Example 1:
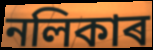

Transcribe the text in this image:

নলিকাৰ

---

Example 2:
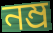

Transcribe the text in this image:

নম্ৰ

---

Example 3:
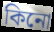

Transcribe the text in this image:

কিনো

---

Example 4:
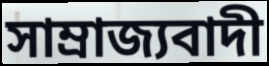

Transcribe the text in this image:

সাম্ৰাজ্যবাদী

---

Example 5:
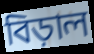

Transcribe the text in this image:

বিড়াল